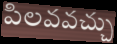
పిలవవచ్చు